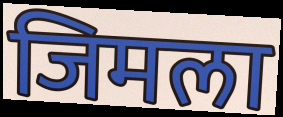
जिमला